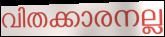
വിതക്കാരനല്ല